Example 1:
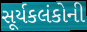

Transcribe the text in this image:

સૂર્યકલંકોની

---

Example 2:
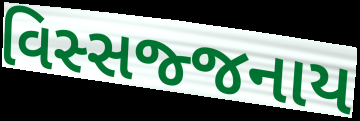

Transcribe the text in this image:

વિસ્સજ્જનાય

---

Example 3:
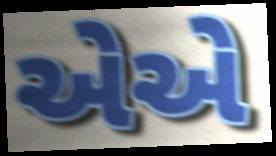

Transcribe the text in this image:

એએ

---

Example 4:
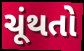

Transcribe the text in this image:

ચૂંથતો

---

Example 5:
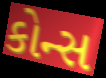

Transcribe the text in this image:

કોન્સ